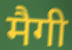
मैगी